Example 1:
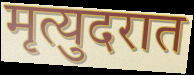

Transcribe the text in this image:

मृत्युदरात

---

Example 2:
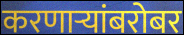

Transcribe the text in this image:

करणार्‍यांबरोबर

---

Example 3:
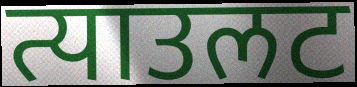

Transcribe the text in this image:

त्याउलट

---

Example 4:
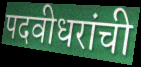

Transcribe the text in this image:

पदवीधरांची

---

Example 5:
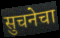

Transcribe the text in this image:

सुचनेचा